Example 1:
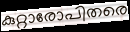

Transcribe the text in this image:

കുറ്റാരോപിതരെ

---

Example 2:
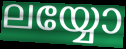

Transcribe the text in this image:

ലയ്യോ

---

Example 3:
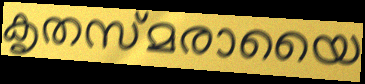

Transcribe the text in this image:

കൃതസ്മരായൈ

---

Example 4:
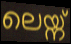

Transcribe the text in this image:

ലെയ്ന്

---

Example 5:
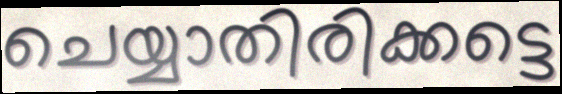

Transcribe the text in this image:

ചെയ്യാതിരിക്കട്ടെ